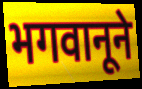
भगवानूने